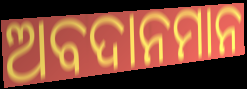
ଅବଦାନମାନ